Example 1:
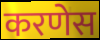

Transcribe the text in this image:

करणेस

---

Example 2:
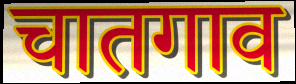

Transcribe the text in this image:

चातगाव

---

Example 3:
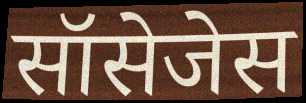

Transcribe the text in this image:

सॉसेजेस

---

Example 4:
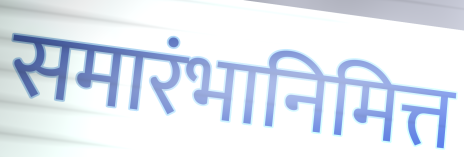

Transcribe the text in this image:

समारंभानिमित्त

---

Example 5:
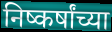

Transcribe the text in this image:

निष्कर्षांच्या